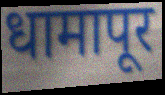
धामापूर